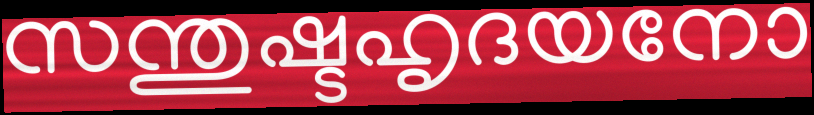
സന്തുഷ്ടഹൃദയനോ